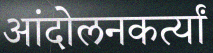
आंदोलनकर्त्यां